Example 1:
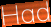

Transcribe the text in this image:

Had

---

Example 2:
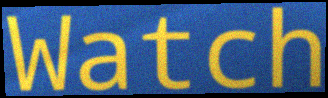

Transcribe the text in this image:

Watch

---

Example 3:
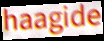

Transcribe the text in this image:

haagide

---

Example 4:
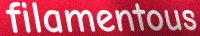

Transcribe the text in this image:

filamentous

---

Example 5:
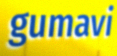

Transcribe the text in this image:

gumavi